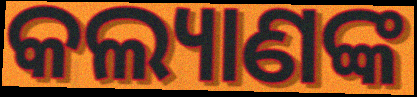
କଲ୍ୟାଣଙ୍କ